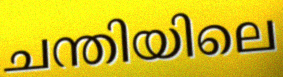
ചന്തിയിലെ